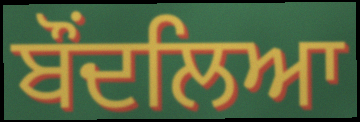
ਬੌਂਦਲਿਆ